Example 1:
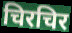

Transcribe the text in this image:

चिरचिर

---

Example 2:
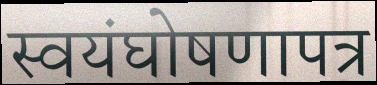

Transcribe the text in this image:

स्वयंघोषणापत्र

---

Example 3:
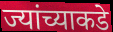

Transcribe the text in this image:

ज्यांच्याकडे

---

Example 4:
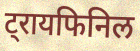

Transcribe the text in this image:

ट्रायफिनिल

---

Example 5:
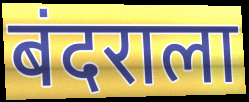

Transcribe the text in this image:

बंदराला